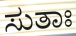
ಸುತಾಃ